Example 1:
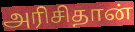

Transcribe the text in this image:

அரிசிதான்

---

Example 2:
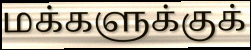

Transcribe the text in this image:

மக்களுக்குக்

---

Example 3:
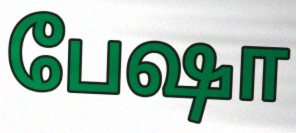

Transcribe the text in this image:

பேஷா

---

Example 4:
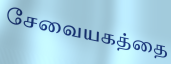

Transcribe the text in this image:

சேவையகத்தை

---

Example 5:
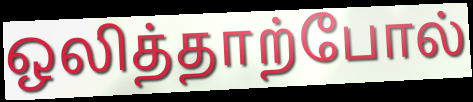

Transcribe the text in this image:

ஒலித்தாற்போல்